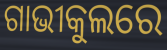
ଗାଭୀକୁଲରେ